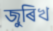
জুৰিখ